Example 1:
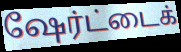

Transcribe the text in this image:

ஷேர்ட்டைக்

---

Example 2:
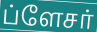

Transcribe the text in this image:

ப்ளேசர்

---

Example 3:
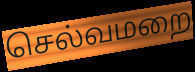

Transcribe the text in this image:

செல்வமறை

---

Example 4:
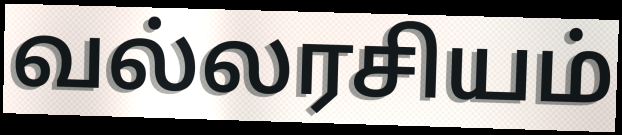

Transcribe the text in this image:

வல்லரசியம்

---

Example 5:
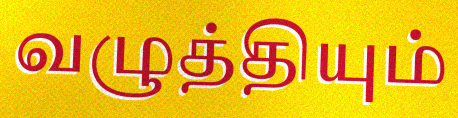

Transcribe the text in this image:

வழுத்தியும்